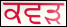
ਕਵੜ